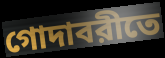
গোদাবরীতে